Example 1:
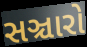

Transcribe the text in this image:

સઞ્ચારો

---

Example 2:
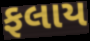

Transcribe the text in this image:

ફલાય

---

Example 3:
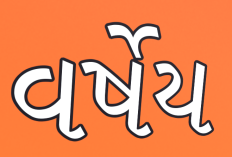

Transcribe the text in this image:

વર્ષેય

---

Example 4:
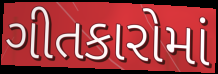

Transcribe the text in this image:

ગીતકારોમાં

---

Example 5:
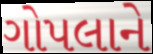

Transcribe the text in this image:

ગોપલાને